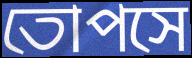
তোপসে